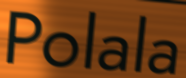
Polala